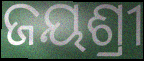
ଜୟଶ୍ରୀ